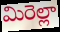
మిరెల్లా